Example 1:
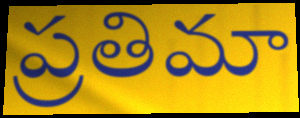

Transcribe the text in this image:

ప్రతిమా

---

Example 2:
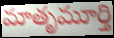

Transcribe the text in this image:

మాతృమూర్తి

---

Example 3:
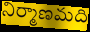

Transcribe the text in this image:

నిర్మాణమది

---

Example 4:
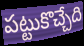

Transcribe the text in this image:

పట్టుకొచ్చేది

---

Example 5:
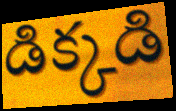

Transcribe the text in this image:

డిక్కడి